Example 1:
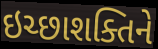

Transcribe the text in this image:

ઇચ્છાશક્તિને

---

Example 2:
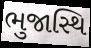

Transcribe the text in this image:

ભુજાસ્થિ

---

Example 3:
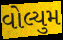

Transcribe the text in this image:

વોલ્યુમ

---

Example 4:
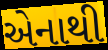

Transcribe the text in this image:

એનાથી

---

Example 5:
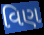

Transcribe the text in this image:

વિણ